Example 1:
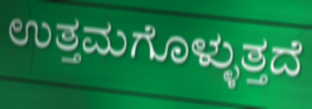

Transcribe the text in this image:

ಉತ್ತಮಗೊಳ್ಳುತ್ತದೆ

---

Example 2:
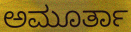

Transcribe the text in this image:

ಅಮೂರ್ತಾ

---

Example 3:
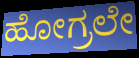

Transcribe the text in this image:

ಹೋಗ್ರಲೇ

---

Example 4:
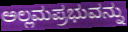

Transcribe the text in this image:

ಅಲ್ಲಮಪ್ರಭುವನ್ನು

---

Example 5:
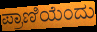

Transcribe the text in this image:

ಪ್ರಾಣಿಯೆಂದು